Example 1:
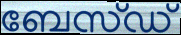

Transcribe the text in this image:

ബേസ്ഡ്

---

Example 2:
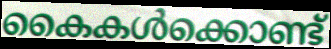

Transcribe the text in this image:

കൈകൾക്കൊണ്ട്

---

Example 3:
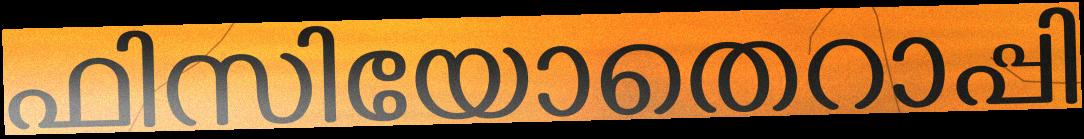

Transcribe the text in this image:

ഫിസിയോതെറാപ്പി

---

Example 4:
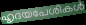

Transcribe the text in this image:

ഹൃദയപേശികൾ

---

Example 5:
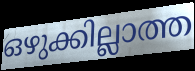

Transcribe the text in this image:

ഒഴുക്കില്ലാത്ത